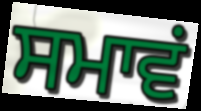
ਸਮਾਵਂ